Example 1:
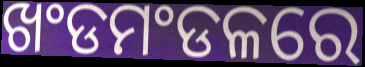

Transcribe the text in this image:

ଖଂଡମଂଡଳରେ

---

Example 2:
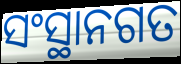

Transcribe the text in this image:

ସଂସ୍ଥାନଗତ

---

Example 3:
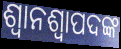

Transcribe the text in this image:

ଶ୍ୱାନଶ୍ୱାପଦଙ୍କ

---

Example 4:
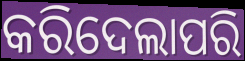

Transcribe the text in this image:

କରିଦେଲାପରି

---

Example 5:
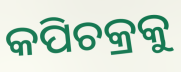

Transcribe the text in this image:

କପିଚକ୍ରକୁ